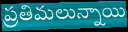
ప్రతిమలున్నాయి